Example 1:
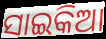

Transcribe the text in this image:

ସାଇକିଆ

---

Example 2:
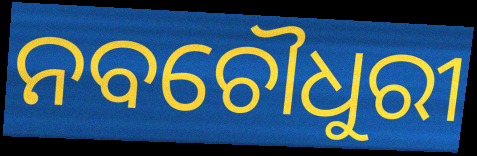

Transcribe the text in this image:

ନବଚୌଧୁରୀ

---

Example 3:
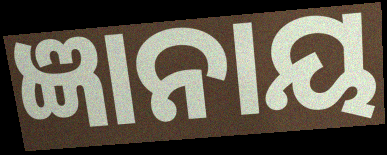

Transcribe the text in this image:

ଜ୍ଞାନାୟ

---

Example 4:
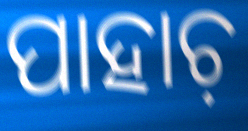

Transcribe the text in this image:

ପାହାଚ଼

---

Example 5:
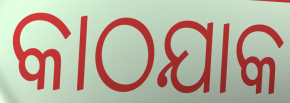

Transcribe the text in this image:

କାଠଯାକ